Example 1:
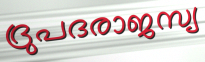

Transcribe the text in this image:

ദ്രുപദരാജസ്യ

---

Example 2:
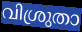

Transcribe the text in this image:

വിശ്രുതാ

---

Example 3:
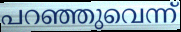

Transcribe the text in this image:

പറഞ്ഞുവെന്ന്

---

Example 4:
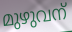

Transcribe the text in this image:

മുഴുവന്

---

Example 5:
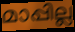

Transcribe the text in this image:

മാപ്പില്ല